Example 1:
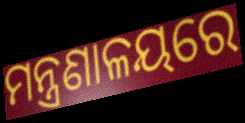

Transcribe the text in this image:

ମନ୍ତ୍ରଣାଳୟରେ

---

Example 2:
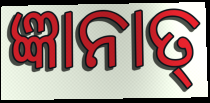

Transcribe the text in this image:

ଜ୍ଞାନାତ୍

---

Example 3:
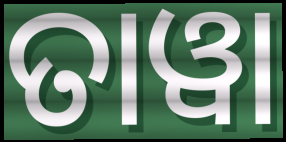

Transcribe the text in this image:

ତାୱା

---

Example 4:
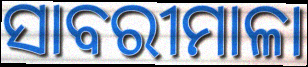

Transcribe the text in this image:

ସାବରୀମାଳା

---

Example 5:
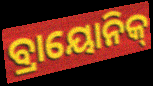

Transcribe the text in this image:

ବ୍ରାୟୋନିକ୍